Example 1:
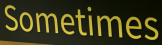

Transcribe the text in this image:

Sometimes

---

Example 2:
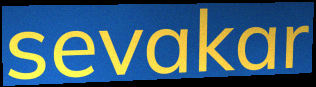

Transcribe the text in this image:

sevakar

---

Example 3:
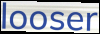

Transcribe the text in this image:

looser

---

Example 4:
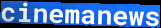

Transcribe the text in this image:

cinemanews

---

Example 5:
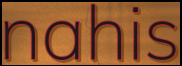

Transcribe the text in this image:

nahis